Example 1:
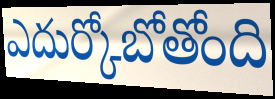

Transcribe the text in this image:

ఎదుర్కోబోతోంది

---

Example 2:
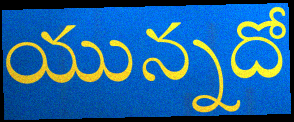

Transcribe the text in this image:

యున్నదో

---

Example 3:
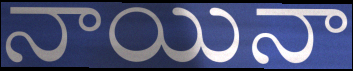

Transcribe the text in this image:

నాయినా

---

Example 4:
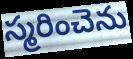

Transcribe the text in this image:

స్మరించెను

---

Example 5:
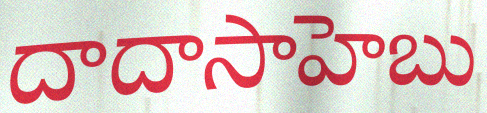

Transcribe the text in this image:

దాదాసాహెబు